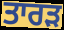
ਤਾਰੜ